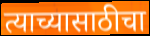
त्याच्यासाठीचा